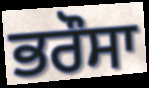
ਭਰੌਸਾ